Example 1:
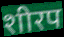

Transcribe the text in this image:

शीरप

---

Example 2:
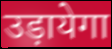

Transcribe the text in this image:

उड़ायेगा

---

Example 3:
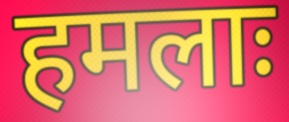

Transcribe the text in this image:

हमलाः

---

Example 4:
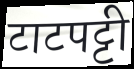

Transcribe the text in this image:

टाटपट्टी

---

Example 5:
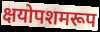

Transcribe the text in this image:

क्षयोपशमरूप